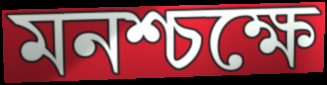
মনশ্চক্ষে